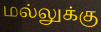
மல்லுக்கு